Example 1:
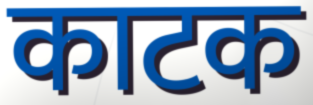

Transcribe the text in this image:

काटक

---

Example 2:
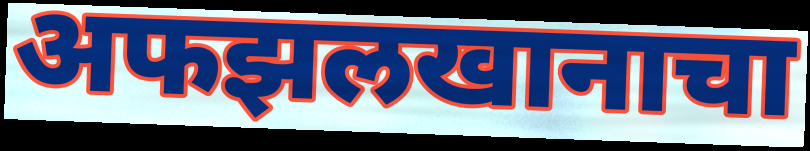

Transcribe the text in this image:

अफझलखानाचा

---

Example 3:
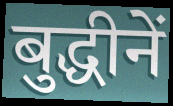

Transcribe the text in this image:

बुद्धीनें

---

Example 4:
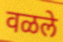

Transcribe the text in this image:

वळले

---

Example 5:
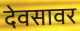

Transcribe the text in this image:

देवसावर